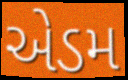
એડમ